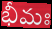
భీమః